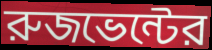
রুজভেন্টের